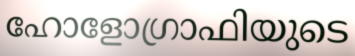
ഹോളോഗ്രാഫിയുടെ